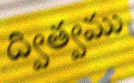
ద్విత్వము